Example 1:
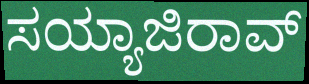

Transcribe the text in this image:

ಸಯ್ಯಾಜಿರಾವ್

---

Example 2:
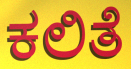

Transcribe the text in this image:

ಕಲಿತೆ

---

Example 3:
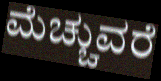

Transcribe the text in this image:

ಮೆಚ್ಚುವರೆ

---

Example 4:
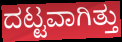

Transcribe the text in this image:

ದಟ್ಟವಾಗಿತ್ತು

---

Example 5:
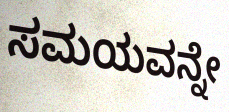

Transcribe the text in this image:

ಸಮಯವನ್ನೇ